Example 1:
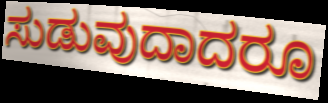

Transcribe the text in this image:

ಸುಡುವುದಾದರೂ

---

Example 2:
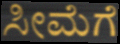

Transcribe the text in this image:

ಸೀಮೆಗೆ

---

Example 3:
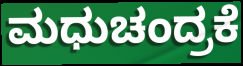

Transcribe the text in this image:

ಮಧುಚಂದ್ರಕೆ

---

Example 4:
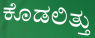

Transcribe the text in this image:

ಕೊಡಲಿತ್ತು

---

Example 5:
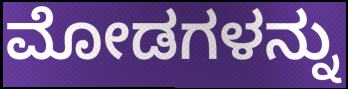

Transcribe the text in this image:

ಮೋಡಗಳನ್ನು